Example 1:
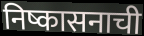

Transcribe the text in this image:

निष्कासनाची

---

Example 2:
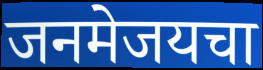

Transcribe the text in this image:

जनमेजयचा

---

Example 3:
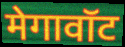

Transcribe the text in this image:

मेगावॉट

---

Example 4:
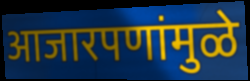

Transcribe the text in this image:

आजारपणांमुळे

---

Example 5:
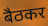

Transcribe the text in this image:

बैठकर